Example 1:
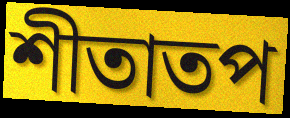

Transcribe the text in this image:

শীতাতপ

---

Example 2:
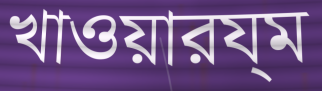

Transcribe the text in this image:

খাওয়ারয্ম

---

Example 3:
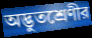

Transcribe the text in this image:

অদ্ভুতশ্রেণীর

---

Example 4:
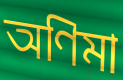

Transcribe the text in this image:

অণিমা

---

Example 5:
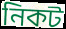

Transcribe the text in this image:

নিকট